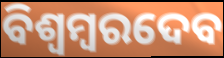
ବିଶ୍ୱମ୍ବରଦେବ